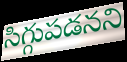
సిగ్గుపడనని